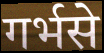
गर्भसे